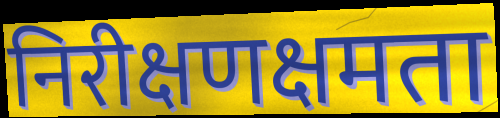
निरीक्षणक्षमता